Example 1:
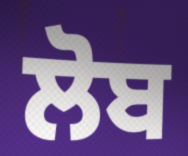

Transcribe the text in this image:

ਲੋਬ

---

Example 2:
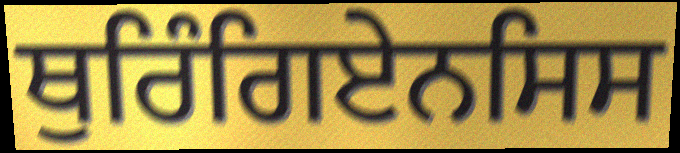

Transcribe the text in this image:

ਥੁਰਿੰਗਿਏਨਸਿਸ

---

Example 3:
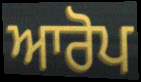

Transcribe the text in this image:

ਆਰੋਪ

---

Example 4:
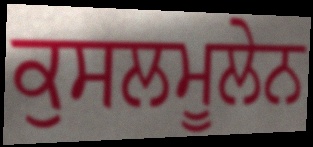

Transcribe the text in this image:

ਕੁਸਲਮੂਲੇਨ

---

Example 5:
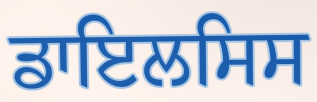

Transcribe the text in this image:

ਡਾਇਲਸਿਸ